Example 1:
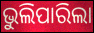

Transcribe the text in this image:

ଭୁଲିପାରିଲା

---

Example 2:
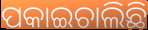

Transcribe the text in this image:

ପକାଇଚାଲିଛି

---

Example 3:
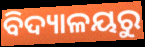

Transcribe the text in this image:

ବିଦ୍ୟାଳୟରୁ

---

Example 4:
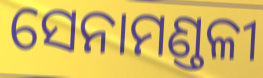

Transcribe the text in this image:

ସେନାମଣ୍ଡଳୀ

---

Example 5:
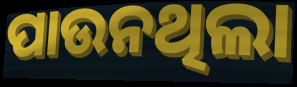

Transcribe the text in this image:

ପାଉନଥିଲା